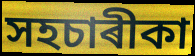
সহচাৰীকা